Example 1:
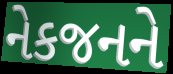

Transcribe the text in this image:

નેકજનને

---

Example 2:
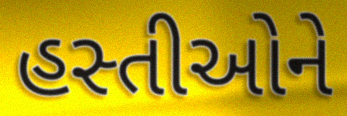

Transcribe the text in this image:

હસ્તીઓને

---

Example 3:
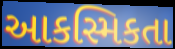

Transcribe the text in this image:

આકસ્મિકતા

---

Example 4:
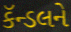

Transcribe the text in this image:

કૅન્ડલને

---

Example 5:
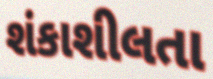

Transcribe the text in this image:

શંકાશીલતા